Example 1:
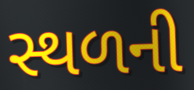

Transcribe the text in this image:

સ્થળની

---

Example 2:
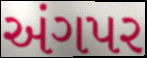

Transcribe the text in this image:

અંગપર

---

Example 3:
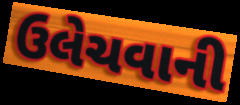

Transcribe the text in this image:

ઉલેચવાની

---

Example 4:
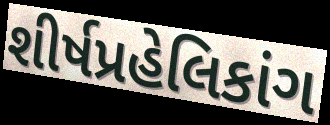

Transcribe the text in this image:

શીર્ષપ્રહેલિકાંગ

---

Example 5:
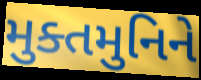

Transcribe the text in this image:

મુક્તમુનિને